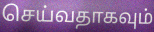
செய்வதாகவும்